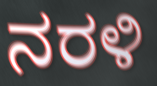
ನರಳಿ